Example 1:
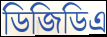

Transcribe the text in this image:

ডিজিডিএ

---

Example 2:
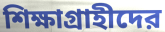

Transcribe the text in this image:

শিক্ষাগ্রাহীদের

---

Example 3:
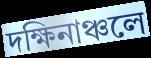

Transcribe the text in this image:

দক্ষিনাঞ্চলে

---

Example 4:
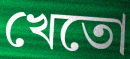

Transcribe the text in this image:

খেতো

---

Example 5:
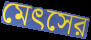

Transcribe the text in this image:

মেৎসের